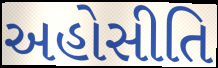
અહોસીતિ